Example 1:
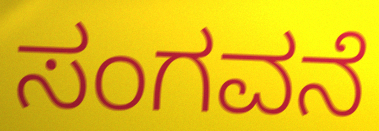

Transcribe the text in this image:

ಸಂಗವನೆ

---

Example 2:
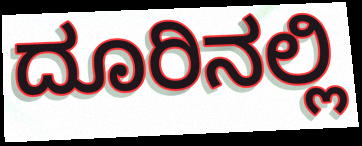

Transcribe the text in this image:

ದೂರಿನಲ್ಲಿ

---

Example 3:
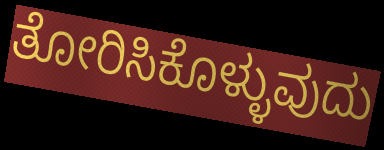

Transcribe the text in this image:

ತೋರಿಸಿಕೊಳ್ಳುವುದು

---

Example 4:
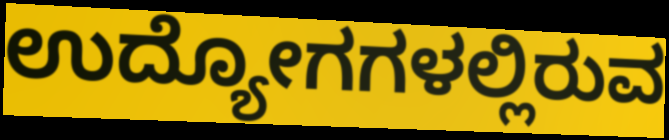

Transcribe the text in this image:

ಉದ್ಯೋಗಗಳಲ್ಲಿರುವ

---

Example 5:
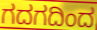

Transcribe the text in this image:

ಗದಗದಿಂದ